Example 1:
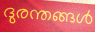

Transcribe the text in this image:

ദുരന്തങ്ങൾ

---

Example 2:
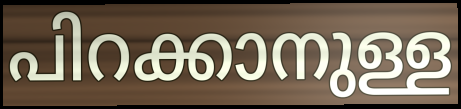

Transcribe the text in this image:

പിറക്കാനുള്ള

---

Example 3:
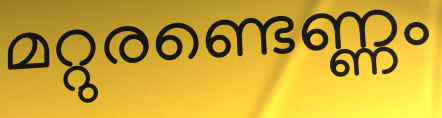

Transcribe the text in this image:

മറ്റുരണ്ടെണ്ണം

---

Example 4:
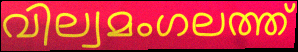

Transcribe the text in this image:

വില്വമംഗലത്ത്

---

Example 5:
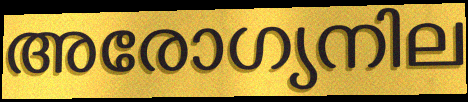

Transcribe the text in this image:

അരോഗ്യനില